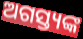
ଅଗସ୍ତ୍ୟଙ୍କ